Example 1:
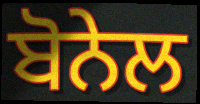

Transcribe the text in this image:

ਬੋਨੇਲ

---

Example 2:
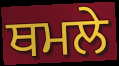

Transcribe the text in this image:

ਥਮਲੇ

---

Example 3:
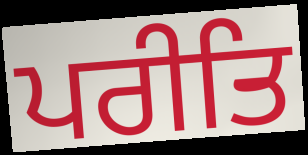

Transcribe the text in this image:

ਪਰੀਤਿ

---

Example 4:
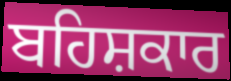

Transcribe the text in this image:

ਬਹਿਸ਼ਕਾਰ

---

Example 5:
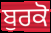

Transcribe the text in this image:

ਬੁਰਕੋ